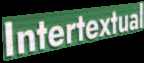
Intertextual